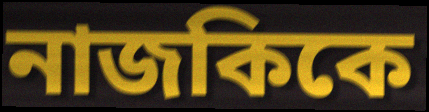
নাজকিকে